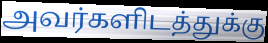
அவர்களிடத்துக்கு